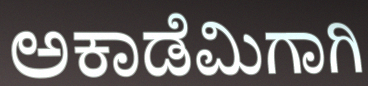
ಅಕಾಡೆಮಿಗಾಗಿ